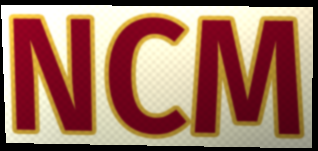
NCM